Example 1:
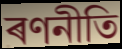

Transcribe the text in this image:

ৰণনীতি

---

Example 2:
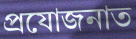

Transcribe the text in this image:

প্ৰযোজনাত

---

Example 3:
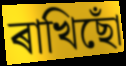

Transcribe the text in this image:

ৰাখিছোঁ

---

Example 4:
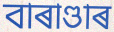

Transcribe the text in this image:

বাৰাণ্ডাৰ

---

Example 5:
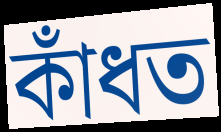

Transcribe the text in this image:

কাঁধত